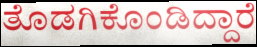
ತೊಡಗಿಕೊಂಡಿದ್ದಾರೆ